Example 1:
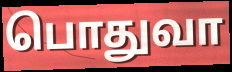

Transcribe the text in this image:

பொதுவா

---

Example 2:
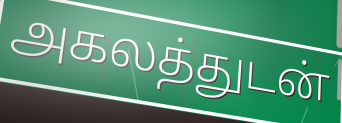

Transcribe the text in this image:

அகலத்துடன்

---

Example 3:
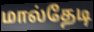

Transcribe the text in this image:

மால்தேடி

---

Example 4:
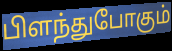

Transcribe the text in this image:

பிளந்துபோகும்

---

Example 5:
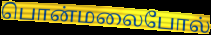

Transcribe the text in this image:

பொன்மலைபோல்